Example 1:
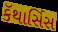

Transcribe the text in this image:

કૅથાર્સિસ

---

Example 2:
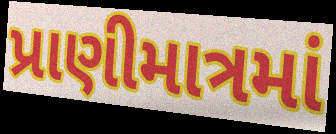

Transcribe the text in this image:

પ્રાણીમાત્રમાં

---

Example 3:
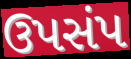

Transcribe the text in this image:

ઉપસંપ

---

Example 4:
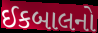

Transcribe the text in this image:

ઈકબાલનો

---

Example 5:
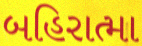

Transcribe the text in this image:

બહિરાત્મા